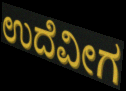
ಉದೆವೀಗ